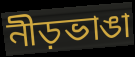
নীড়ভাঙা